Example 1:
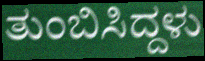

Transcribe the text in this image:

ತುಂಬಿಸಿದ್ದಳು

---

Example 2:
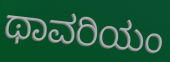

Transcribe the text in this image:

ಥಾವರಿಯಂ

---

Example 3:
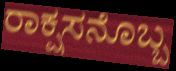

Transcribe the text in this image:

ರಾಕ್ಷಸನೊಬ್ಬ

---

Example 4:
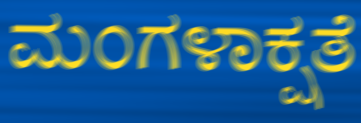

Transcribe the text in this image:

ಮಂಗಳಾಕ್ಷತೆ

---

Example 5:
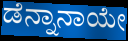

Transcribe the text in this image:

ಡೆನ್ನಾನಾಯೇ